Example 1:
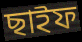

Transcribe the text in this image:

ছাইফ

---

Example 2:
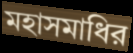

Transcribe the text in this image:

মহাসমাধির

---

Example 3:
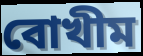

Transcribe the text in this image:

বোখীম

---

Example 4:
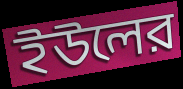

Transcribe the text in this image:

ইউলের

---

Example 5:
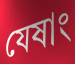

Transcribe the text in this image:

যেষাং